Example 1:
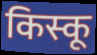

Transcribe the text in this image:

किस्कू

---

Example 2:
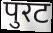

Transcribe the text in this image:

पुरट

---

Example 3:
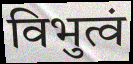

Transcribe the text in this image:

विभुत्वं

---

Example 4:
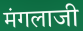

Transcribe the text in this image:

मंगलाजी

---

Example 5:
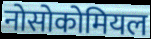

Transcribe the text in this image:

नोसोकोमियल